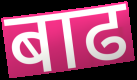
बाढ